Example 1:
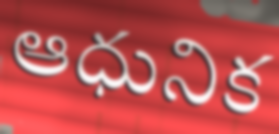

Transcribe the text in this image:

ఆధునిక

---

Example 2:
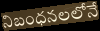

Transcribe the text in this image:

నిబంధనలలోనే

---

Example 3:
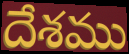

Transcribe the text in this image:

దేశము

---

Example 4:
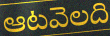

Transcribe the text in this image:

ఆటవెలది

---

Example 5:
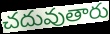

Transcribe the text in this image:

చదువుతారు